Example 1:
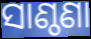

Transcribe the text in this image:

ସାଣ୍ଠଣା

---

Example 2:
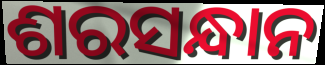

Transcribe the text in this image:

ଶରସନ୍ଧାନ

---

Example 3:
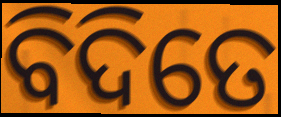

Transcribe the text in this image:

ବିଦିତେ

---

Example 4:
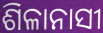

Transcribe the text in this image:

ଶିଳାନାସୀ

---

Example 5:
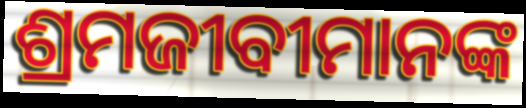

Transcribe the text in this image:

ଶ୍ରମଜୀବୀମାନଙ୍କ